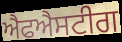
ਐਫਐਸਟੀਗ